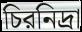
চিরনিদ্রা